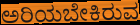
ಅರಿಯಬೇಕಿರುವ